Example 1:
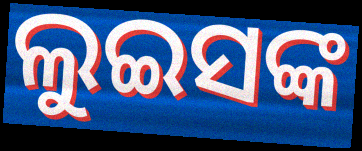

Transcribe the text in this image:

ଲୁଇସଙ୍କ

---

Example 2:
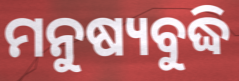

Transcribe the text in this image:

ମନୁଷ୍ୟବୁଦ୍ଧି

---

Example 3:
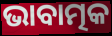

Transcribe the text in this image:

ଭାବାତ୍ମକ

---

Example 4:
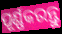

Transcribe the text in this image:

ପୂର୍ଣ୍ଣକରନ୍ତୁ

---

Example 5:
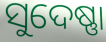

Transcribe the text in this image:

ସୁଦେଷ୍ଣା